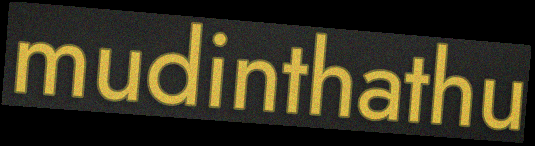
mudinthathu